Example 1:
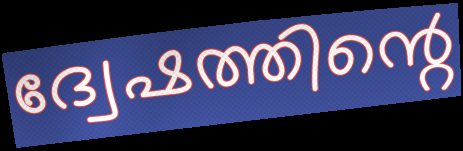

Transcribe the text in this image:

ദ്വേഷത്തിന്റെ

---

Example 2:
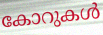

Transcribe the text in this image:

കോറുകൾ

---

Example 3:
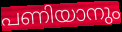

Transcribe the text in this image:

പണിയാനും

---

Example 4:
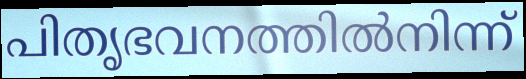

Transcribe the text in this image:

പിതൃഭവനത്തിൽനിന്ന്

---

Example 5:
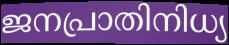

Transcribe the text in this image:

ജനപ്രാതിനിധ്യ